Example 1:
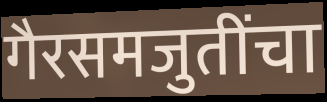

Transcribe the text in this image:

गैरसमजुतींचा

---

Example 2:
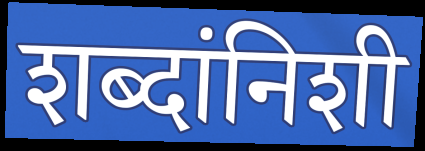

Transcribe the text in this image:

शब्दांनिशी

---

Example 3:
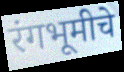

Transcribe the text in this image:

रंगभूमीचे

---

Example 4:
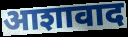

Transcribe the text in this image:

आशावाद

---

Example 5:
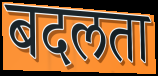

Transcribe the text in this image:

बदलता